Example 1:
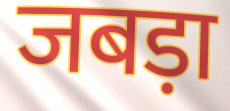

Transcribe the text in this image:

जबड़ा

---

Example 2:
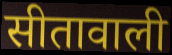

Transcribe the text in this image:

सीतावाली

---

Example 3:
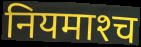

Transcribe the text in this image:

नियमाश्च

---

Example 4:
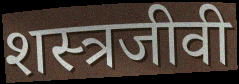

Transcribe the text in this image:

शस्त्रजीवी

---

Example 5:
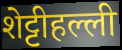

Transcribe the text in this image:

शेट्टीहल्ली